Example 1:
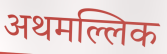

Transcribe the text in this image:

अथमल्लिक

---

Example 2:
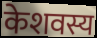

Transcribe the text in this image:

केशवस्य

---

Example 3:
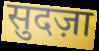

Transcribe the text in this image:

सुदज़ा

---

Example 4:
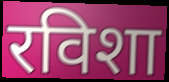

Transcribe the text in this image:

रविशा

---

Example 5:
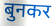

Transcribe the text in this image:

बुनकर